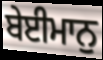
ਬੇਈਮਾਨੁ